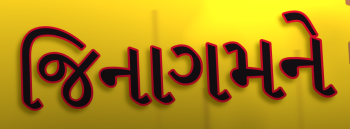
જિનાગમને